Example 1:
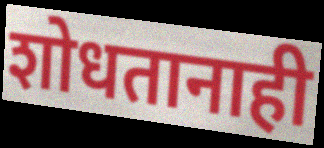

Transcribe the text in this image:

शोधतानाही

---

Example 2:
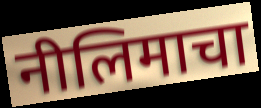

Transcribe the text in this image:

नीलिमाचा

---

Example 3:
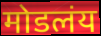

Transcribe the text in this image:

मोडलंय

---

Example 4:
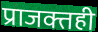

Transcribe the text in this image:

प्राजक्तही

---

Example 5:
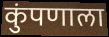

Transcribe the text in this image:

कुंपणाला